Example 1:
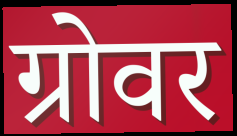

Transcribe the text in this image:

ग्रोवर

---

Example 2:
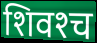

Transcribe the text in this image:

शिवश्च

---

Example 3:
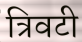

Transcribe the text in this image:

त्रिवटी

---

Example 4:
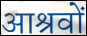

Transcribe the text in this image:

आश्रवों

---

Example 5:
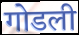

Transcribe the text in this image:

गोडली